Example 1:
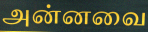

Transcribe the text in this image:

அன்னவை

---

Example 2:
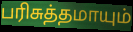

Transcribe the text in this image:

பரிசுத்தமாயும்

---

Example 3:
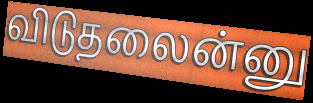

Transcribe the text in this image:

விடுதலைன்னு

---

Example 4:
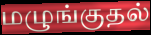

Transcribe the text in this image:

மழுங்குதல்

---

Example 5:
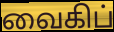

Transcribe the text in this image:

வைகிப்